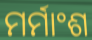
ମର୍ମାଂଶ